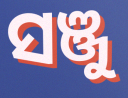
ସଞ୍ଜୁ